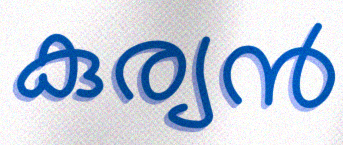
കുര്യൻ